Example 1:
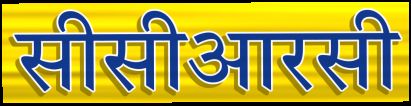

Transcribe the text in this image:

सीसीआरसी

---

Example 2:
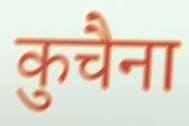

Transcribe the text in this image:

कुचैना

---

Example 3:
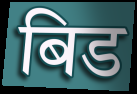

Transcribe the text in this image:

बिड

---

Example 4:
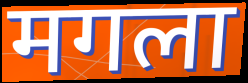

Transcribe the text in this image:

मगला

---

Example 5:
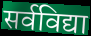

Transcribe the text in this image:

सर्वविद्या